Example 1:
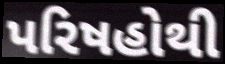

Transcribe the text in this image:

પરિષહોથી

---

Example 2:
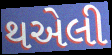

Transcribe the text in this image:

થએલી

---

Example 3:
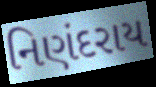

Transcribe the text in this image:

નિણંદરાય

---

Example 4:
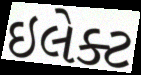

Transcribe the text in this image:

ઇલેક્ટ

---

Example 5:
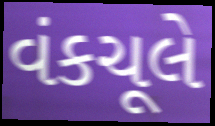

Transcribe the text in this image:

વંકચૂલે